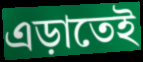
এড়াতেই